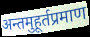
अन्तमुहूर्तप्रमाण